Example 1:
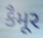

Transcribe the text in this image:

કૈમૂર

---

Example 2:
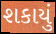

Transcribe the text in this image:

શકાયું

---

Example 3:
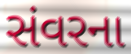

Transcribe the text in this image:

સંવરના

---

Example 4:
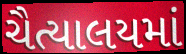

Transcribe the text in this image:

ચૈત્યાલયમાં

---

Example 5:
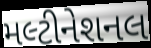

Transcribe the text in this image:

મલ્ટીનેશનલ